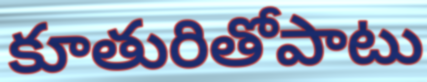
కూతురితోపాటు